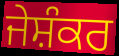
ਜੇਸ਼ੰਕਰ